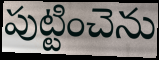
పుట్టించెను